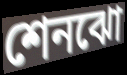
শেনঝো